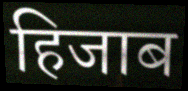
हिजाब